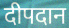
दीपदान